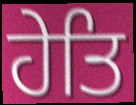
ਹੇਤਿ